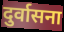
दुर्वासना